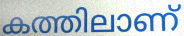
കത്തിലാണ്